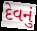
દેવનું